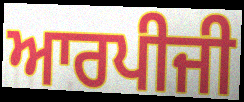
ਆਰਪੀਜੀ